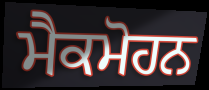
ਮੈਕਮੋਹਨ